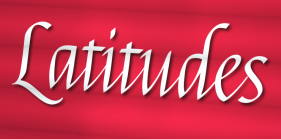
Latitudes